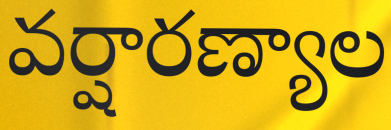
వర్షారణ్యాల